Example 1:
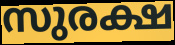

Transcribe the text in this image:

സുരക്ഷ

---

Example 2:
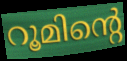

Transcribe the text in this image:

റൂമിന്റെ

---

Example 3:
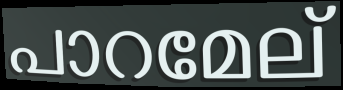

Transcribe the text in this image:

പാറമേല്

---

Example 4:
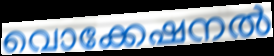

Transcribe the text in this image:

വൊക്കേഷനൽ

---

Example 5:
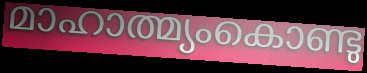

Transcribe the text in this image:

മാഹാത്മ്യംകൊണ്ടു